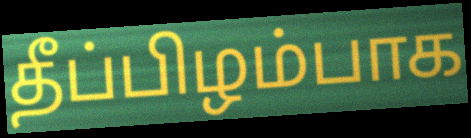
தீப்பிழம்பாக